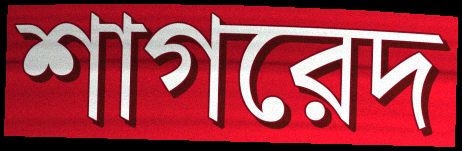
শাগরেদ